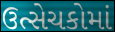
ઉત્સેચકોમાં